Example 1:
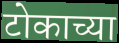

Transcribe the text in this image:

टोकाच्या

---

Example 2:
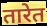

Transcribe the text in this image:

तारेत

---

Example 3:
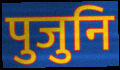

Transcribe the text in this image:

पुजुनि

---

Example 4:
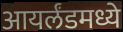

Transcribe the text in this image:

आयर्लंडमध्ये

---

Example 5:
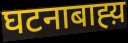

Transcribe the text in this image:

घटनाबाह्य़